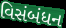
વિસંબંધન